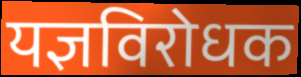
यज्ञविरोधक